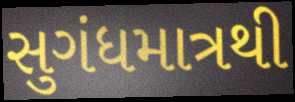
સુગંધમાત્રથી